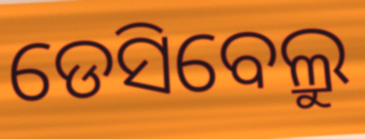
ଡେସିବେଲ୍ରୁ